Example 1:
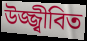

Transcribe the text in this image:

উজ্জ্বীবিত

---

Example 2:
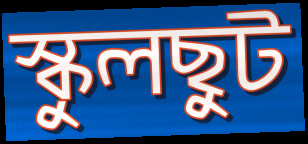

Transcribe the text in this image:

স্কুলছুট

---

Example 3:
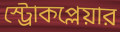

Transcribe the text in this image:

স্ট্রোকপ্লেয়ার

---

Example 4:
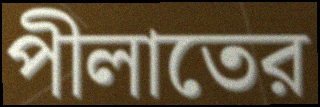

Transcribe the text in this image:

পীলাতের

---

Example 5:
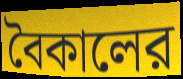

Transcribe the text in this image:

বৈকালের